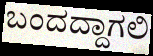
ಬಂದದ್ದಾಗಲಿ